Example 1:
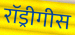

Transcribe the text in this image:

रॉड्रीगीस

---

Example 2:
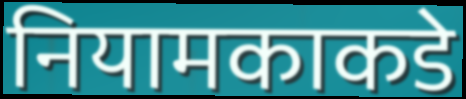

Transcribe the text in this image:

नियामकाकडे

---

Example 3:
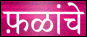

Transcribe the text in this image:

फ़ळांचे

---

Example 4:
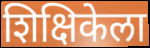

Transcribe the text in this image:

शिक्षिकेला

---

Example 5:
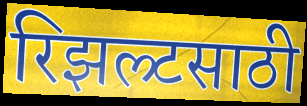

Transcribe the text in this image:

रिझल्टसाठी